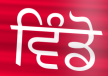
ਵਿੰਡੋ